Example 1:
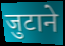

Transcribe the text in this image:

जुटाने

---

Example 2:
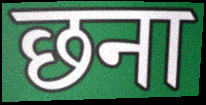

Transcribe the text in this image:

छना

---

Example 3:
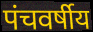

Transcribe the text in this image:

पंचवर्षीय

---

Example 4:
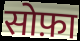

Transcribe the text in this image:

सोफ़ा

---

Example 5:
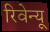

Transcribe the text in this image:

रिवेन्यू